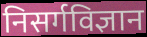
निसर्गविज्ञान